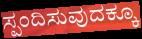
ಸ್ಪಂದಿಸುವುದಕ್ಕೂ